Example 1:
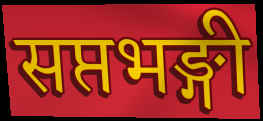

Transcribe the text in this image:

सप्तभङ्गी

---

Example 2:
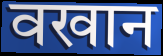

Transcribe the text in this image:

वखान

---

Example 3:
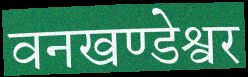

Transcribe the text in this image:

वनखण्डेश्वर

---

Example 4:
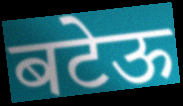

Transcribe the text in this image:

बटेऊ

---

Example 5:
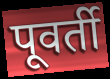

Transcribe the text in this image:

पूवर्ती